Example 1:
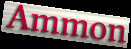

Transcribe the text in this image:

Ammon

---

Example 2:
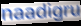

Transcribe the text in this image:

naadigru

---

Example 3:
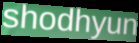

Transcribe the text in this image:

shodhyun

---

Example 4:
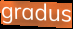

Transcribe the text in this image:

gradus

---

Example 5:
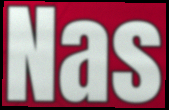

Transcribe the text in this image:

Nas